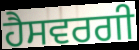
ਹੈਸਵਰਗੀ